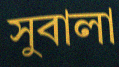
সুবালা